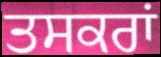
ਤਸਕਰਾਂ